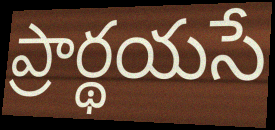
ప్రార్థయసే